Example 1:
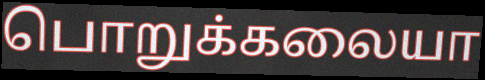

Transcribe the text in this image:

பொறுக்கலையா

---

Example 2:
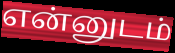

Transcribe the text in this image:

என்னுடம்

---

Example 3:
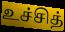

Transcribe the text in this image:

உச்சித்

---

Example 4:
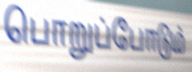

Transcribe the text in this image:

பொறுப்போடும்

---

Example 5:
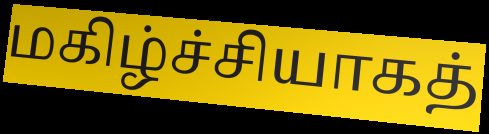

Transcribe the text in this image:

மகிழ்ச்சியாகத்